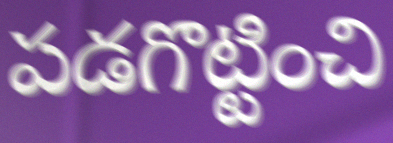
పడగొట్టించి